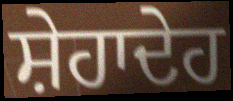
ਸ਼ੇਹਾਦੇਹ